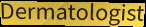
Dermatologist